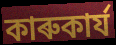
কাৰুকাৰ্য